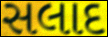
સલાદ